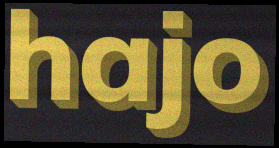
hajo